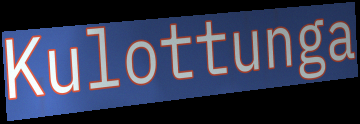
Kulottunga